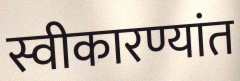
स्वीकारण्यांत